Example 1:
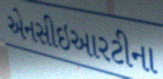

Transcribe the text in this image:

એનસીઇઆરટીના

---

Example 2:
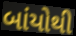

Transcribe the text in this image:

બાંયોથી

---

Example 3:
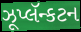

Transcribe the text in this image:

ઝૂપ્લૅન્કટન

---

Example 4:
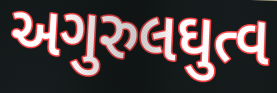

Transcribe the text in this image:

અગુરુલઘુત્વ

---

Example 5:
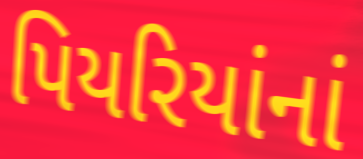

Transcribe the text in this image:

પિયરિયાંનાં